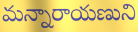
మన్నారాయణుని